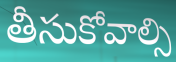
తీసుకోవాల్సి